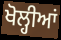
ਖੋਲ੍ਹੀਆਂ